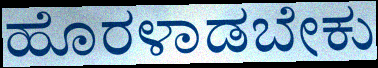
ಹೊರಳಾಡಬೇಕು